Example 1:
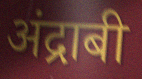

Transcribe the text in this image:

अंद्राबी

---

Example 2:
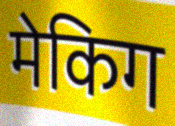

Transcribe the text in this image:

मेकिग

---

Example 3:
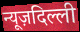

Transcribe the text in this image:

न्यूज़दिल्ली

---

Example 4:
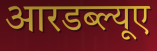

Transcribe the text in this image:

आरडब्ल्यूए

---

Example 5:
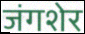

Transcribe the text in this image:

जंगशेर